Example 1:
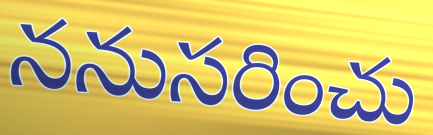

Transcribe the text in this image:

ననుసరించు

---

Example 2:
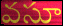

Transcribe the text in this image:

వసూ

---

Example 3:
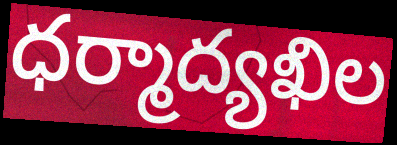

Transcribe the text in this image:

ధర్మాద్యఖిల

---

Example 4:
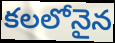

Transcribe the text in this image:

కలలోనైన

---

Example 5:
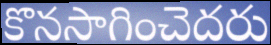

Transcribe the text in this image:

కొనసాగించెదరు